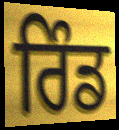
ਰਿੰਡ